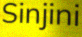
Sinjini